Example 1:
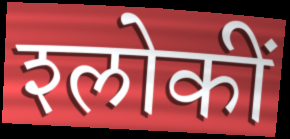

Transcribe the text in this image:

श्लोकीं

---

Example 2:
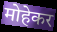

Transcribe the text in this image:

मोहेकर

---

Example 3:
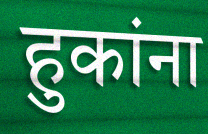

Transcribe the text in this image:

हुकांना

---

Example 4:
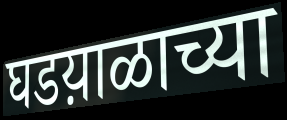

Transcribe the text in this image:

घडय़ाळाच्या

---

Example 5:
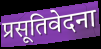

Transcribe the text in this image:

प्रसूतिवेदना